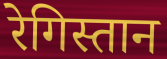
रेगिस्तान